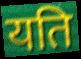
यति